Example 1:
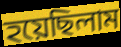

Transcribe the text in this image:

হয়েছিলাম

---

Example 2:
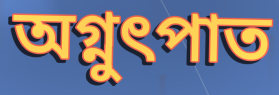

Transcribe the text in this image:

অগ্নুৎপাত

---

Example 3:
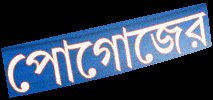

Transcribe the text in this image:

পোগোজের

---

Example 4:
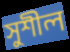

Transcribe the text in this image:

সুশীল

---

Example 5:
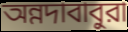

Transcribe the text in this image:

অন্নদাবাবুরা